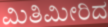
ಮಿತಿಮೀರಿದ